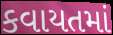
કવાયતમાં